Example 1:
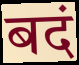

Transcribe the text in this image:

बदं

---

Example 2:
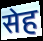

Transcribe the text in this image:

सेह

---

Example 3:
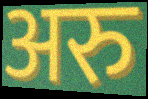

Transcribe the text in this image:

अरु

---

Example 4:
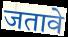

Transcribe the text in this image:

जतावे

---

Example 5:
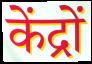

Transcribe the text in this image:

केंद्रों